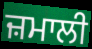
ਜ਼ਮਾਲੀ